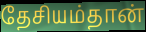
தேசியம்தான்